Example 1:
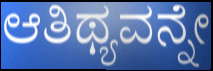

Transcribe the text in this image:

ಆತಿಥ್ಯವನ್ನೇ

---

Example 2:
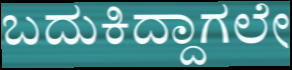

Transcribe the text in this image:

ಬದುಕಿದ್ದಾಗಲೇ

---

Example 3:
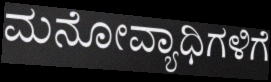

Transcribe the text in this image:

ಮನೋವ್ಯಾಧಿಗಳಿಗೆ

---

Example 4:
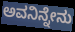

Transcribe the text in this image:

ಅವನಿನ್ನೇನು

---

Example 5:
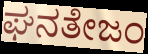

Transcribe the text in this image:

ಘನತೇಜಂ